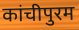
कांचीपुरम